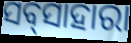
ସବ୍‌ସାହାରା